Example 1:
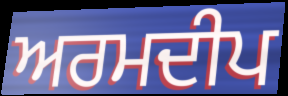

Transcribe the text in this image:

ਅਰਮਦੀਪ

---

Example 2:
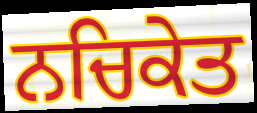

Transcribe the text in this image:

ਨਚਿਕੇਤ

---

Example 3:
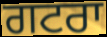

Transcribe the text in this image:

ਗਟਰਾ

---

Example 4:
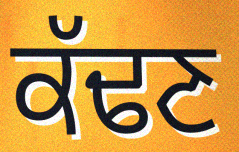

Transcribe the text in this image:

ਕੱਢਣ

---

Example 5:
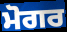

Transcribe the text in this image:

ਮੋਗਰ